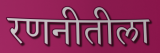
रणनीतीला